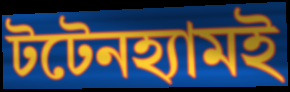
টটেনহ্যামই